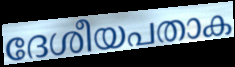
ദേശീയപതാക